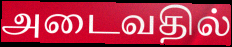
அடைவதில்